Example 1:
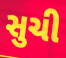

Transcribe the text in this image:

સુચી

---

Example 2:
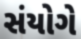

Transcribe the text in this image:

સંયોગે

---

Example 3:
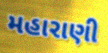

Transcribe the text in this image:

મહારાણી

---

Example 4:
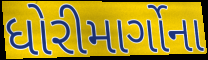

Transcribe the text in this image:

ધોરીમાર્ગોના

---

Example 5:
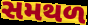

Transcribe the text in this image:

સમથળ